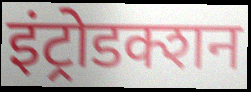
इंट्रोडक्शन